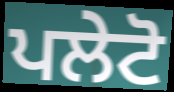
ਪਲੇਟੋ